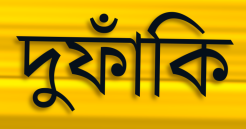
দুফাঁকি